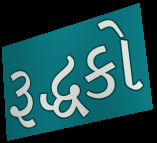
રૂદ્ધકો